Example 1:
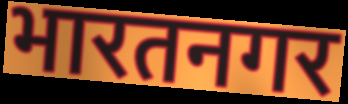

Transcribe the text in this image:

भारतनगर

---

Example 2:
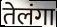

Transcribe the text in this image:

तेलंगा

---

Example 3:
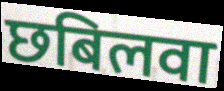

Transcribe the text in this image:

छबिलवा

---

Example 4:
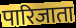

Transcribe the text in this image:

पारिजाता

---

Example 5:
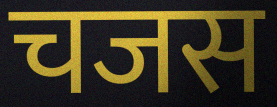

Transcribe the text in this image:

चजस